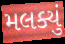
મલક્યું